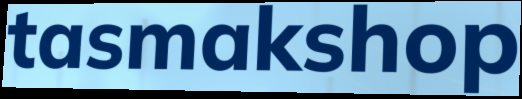
tasmakshop